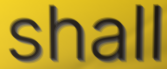
shall